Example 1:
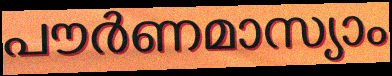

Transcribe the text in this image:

പൗർണമാസ്യാം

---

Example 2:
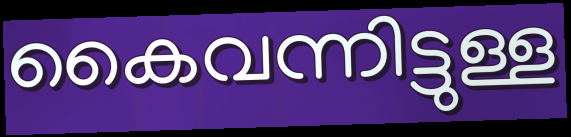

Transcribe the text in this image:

കൈവന്നിട്ടുള്ള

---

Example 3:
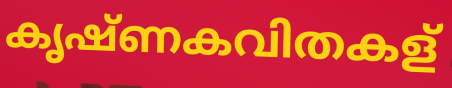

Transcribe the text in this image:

കൃഷ്ണകവിതകള്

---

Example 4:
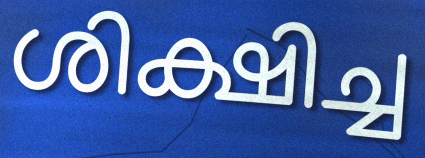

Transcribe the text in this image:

ശിക്ഷിച്ച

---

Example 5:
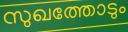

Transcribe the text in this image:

സുഖത്തോടും